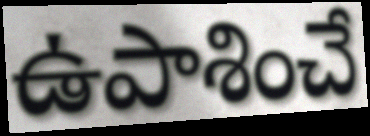
ఉపాశించే